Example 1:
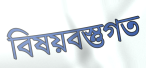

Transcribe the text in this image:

বিষয়বস্তুগত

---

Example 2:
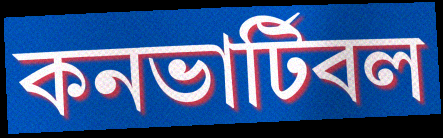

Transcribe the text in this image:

কনভার্টিবল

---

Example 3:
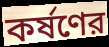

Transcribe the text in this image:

কর্ষণের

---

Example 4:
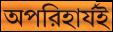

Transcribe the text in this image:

অপরিহার্যই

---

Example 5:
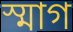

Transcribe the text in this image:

স্মাগ